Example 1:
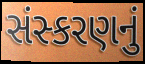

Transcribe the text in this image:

સંસ્કરણનું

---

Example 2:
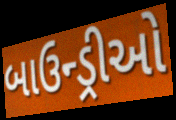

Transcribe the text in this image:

બાઉન્ડ્રીઓ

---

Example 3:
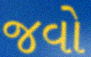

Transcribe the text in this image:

જવો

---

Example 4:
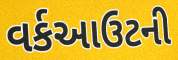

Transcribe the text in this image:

વર્કઆઉટની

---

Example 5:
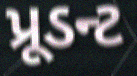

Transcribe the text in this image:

પ્રૂડન્ટ